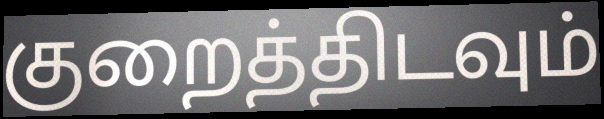
குறைத்திடவும்